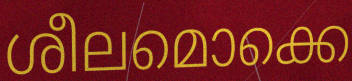
ശീലമൊക്കെ